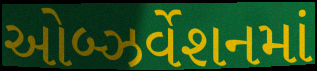
ઓબ્ઝર્વેશનમાં